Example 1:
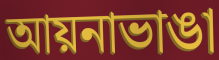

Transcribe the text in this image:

আয়নাভাঙা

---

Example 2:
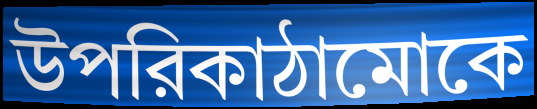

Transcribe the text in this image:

উপরিকাঠামোকে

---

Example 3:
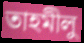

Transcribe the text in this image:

তাহমীলু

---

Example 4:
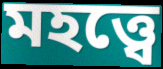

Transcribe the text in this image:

মহত্ত্বে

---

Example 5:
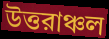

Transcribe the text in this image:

উত্তরাঞ্চল